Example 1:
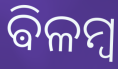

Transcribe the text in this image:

ଵିଳମ୍ବ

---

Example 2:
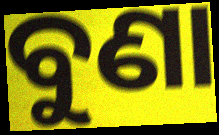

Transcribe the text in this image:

ବୁଣା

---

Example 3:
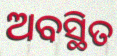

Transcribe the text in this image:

ଅବସ୍ଥିତ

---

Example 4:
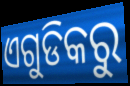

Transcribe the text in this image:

ଏଗୁଡିକରୁ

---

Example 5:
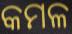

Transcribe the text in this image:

କମଳ